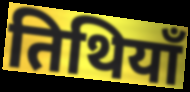
तिथियाँ